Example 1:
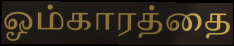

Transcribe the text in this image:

ஓம்காரத்தை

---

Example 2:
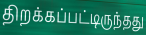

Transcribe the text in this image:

திறக்கப்பட்டிருந்தது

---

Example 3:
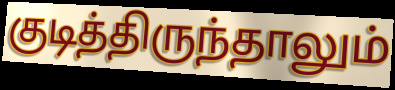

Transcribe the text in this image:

குடித்திருந்தாலும்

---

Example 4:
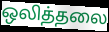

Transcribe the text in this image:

ஒலித்தலை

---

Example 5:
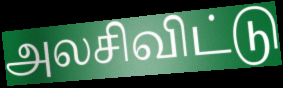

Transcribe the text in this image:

அலசிவிட்டு